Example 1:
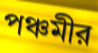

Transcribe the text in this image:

পঞ্চমীর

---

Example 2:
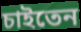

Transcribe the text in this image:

চাইতেন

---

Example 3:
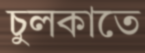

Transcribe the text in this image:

চুলকাতে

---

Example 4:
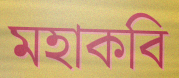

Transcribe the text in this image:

মহাকবি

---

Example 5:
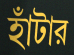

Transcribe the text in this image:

হাঁটার